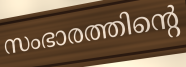
സംഭാരത്തിന്റെ